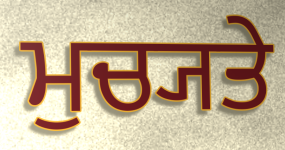
ਮੁਚ੍ਯਤੇ